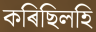
কৰিছিলহি